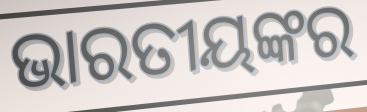
ଭାରତୀୟଙ୍କର